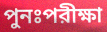
পুনঃপরীক্ষা